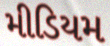
મીડિયમ